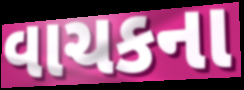
વાચકના